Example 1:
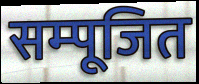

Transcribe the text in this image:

सम्पूजित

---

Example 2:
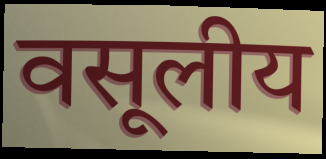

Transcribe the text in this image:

वसूलीय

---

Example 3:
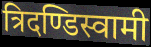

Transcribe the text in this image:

त्रिदण्डिस्वामी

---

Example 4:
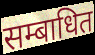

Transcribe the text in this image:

सम्बाधित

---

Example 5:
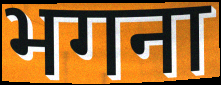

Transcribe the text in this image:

भगना